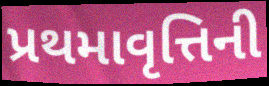
પ્રથમાવૃત્તિની